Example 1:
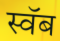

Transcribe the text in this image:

स्वॅब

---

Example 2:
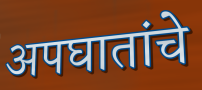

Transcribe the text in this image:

अपघातांचे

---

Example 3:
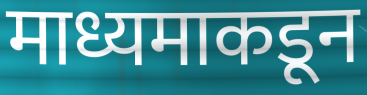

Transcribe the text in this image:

माध्यमाकडून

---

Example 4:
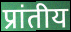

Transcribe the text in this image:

प्रांतीय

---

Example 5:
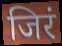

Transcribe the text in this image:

जिरं